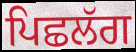
ਪਿਛਲੱਗ